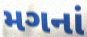
મગનાં